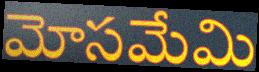
మోసమేమి